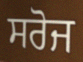
ਸਰੋਜ